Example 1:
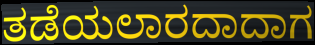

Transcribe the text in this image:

ತಡೆಯಲಾರದಾದಾಗ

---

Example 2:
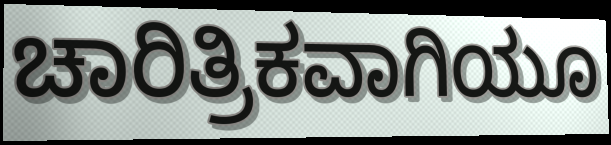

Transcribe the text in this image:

ಚಾರಿತ್ರಿಕವಾಗಿಯೂ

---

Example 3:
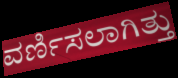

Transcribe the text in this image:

ವರ್ಣಿಸಲಾಗಿತ್ತು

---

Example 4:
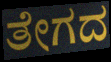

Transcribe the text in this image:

ತೇಗದ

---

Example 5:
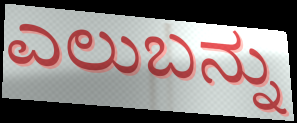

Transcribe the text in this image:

ಎಲುಬನ್ನು